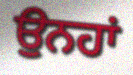
ਉਨਹਾਂ